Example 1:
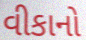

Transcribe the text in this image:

વીકાનો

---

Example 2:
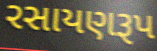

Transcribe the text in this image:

રસાયણરૂપ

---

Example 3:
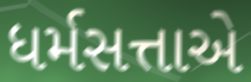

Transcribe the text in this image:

ધર્મસત્તાએ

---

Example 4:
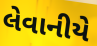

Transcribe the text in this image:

લેવાનીયે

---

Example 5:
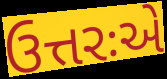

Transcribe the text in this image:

ઉત્તરઃએ